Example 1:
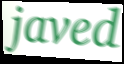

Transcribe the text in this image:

javed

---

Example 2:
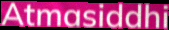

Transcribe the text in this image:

Atmasiddhi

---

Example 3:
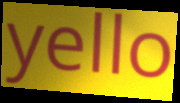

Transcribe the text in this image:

yello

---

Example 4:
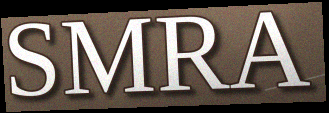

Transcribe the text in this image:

SMRA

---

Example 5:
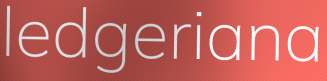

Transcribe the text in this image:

ledgeriana